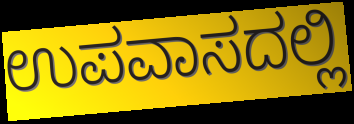
ಉಪವಾಸದಲ್ಲಿ